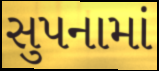
સુપનામાં